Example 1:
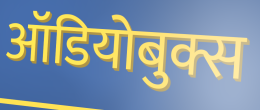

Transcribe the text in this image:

ऑडियोबुक्स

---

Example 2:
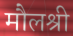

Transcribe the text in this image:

मौलश्री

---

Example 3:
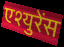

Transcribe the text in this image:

एश्युरेंस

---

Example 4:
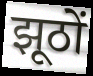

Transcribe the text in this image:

झूठों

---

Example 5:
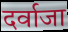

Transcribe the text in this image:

दर्वाजा